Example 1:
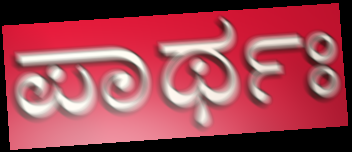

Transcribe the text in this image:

ಪಾರ್ಥಃ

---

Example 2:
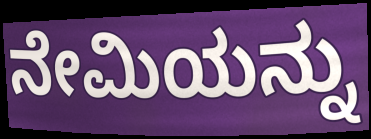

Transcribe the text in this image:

ನೇಮಿಯನ್ನು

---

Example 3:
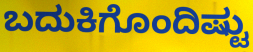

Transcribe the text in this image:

ಬದುಕಿಗೊಂದಿಷ್ಟು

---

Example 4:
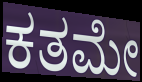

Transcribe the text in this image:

ಕತಮೇ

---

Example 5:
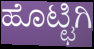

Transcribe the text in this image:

ಹೊಟ್ಟಿಗಿ